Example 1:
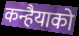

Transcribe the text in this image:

कन्हैयाको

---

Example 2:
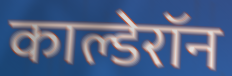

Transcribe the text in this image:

काल्डेरॉन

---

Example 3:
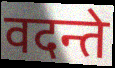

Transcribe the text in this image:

वदन्ते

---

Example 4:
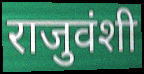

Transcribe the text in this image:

राजुवंशी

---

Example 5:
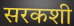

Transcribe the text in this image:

सरकशी